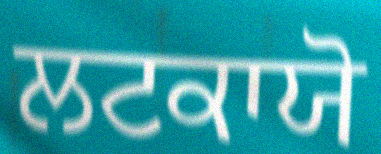
ਲਟਕਾਯੋ